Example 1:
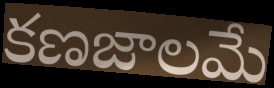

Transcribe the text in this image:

కణజాలమే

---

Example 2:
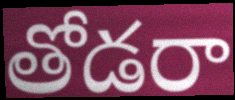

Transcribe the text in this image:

తోడరా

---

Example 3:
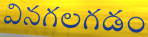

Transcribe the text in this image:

వినగలగడం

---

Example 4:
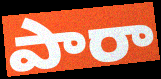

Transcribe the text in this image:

పారా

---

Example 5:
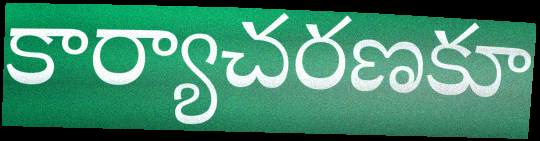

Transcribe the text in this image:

కార్యాచరణకూ